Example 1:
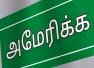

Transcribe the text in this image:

அமேரிக்க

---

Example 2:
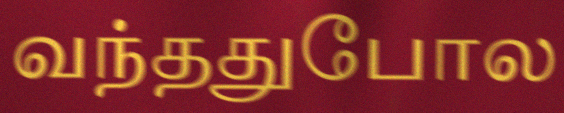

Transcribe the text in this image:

வந்ததுபோல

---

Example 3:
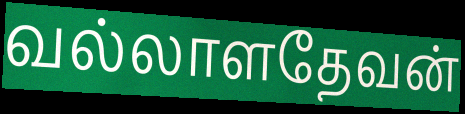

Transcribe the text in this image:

வல்லாளதேவன்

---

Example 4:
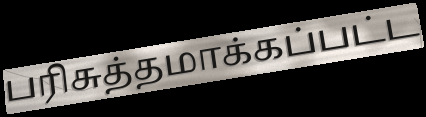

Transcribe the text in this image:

பரிசுத்தமாக்கப்பட்ட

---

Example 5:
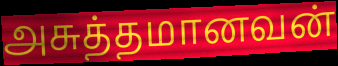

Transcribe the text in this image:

அசுத்தமானவன்